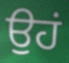
ਉਹਂ